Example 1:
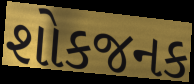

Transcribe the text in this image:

શોકજનક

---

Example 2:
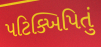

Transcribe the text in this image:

પટિક્ખિપિતું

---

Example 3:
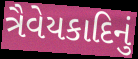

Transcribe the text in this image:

ત્રૈવેયકાદિનું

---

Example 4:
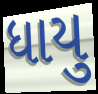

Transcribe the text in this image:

ધાયુ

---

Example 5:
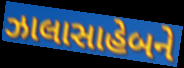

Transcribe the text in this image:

ઝાલાસાહેબને